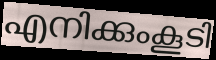
എനിക്കുംകൂടി